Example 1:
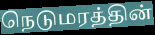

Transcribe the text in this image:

நெடுமரத்தின்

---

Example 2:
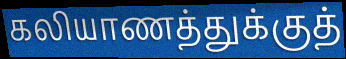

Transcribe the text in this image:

கலியாணத்துக்குத்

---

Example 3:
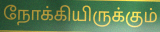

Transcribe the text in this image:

நோக்கியிருக்கும்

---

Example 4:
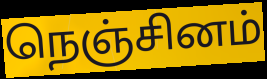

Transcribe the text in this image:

நெஞ்சினம்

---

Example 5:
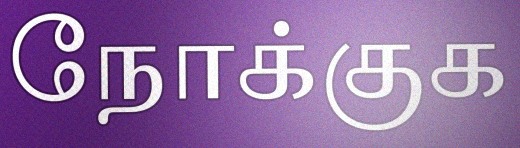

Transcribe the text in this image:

நோக்குக